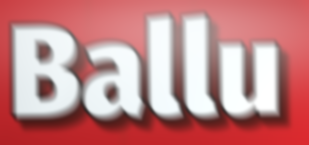
Ballu